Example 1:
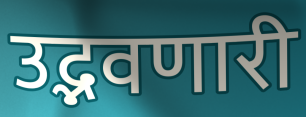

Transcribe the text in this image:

उद्भवणारी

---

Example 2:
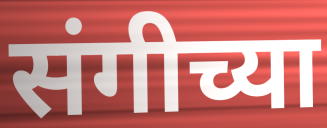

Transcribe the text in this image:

संगीच्या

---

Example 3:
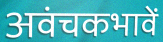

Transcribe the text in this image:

अवंचकभावें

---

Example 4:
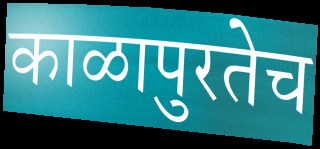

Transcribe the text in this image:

काळापुरतेच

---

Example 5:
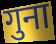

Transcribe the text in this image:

गुना